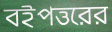
বইপত্তরের